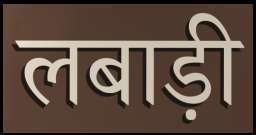
लबाड़ी